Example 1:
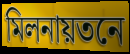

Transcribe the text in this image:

মিলনায়তনে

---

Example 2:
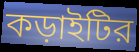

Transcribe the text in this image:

কড়াইটির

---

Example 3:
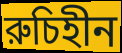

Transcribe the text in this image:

রুচিহীন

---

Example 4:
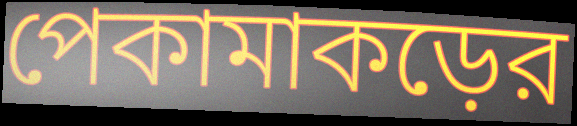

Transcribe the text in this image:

পেকামাকড়ের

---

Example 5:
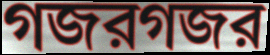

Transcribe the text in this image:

গজরগজর